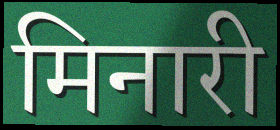
मिनारी